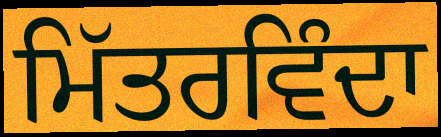
ਮਿੱਤਰਵਿੰਦਾ